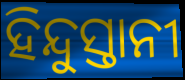
ହିନ୍ଦୁସ୍ତାନୀ